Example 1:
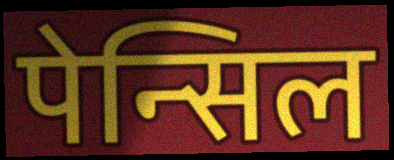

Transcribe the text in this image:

पेन्सिल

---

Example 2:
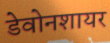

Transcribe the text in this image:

डेवोनशायर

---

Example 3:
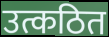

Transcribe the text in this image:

उत्कठित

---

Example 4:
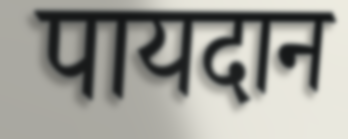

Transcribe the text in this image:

पायदान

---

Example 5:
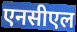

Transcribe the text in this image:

एनसीएल